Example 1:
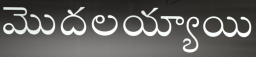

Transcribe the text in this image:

మొదలయ్యాయి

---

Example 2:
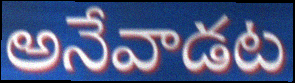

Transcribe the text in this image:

అనేవాడట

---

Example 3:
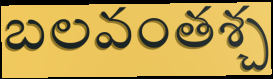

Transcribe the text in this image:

బలవంతశ్చ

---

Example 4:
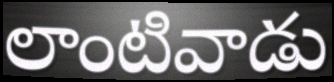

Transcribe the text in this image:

లాంటివాడు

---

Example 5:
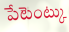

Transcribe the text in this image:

పేటెంట్కు